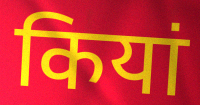
कियां